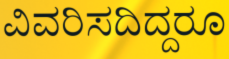
ವಿವರಿಸದಿದ್ದರೂ